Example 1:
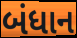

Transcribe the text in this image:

બંધાન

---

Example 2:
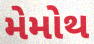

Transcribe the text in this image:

મેમોથ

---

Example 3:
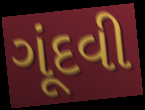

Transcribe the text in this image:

ગૂંદવી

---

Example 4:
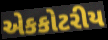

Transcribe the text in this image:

એકકોટરીય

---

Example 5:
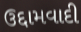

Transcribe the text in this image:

ઉદ્દામવાદી